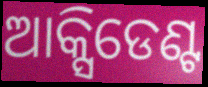
ଆକ୍ସିଡେଣ୍ଟ